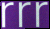
rrr